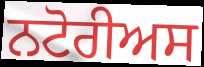
ਨਟੋਰੀਅਸ